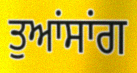
ਤੁਆਂਸਾਂਗ